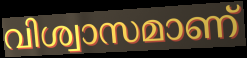
വിശ്വാസമാണ്